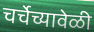
चर्चेच्यावेळी